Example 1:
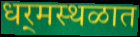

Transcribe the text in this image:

धर्मस्थळात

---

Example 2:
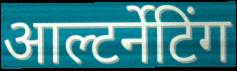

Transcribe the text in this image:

आल्टर्नेटिंग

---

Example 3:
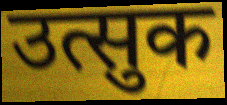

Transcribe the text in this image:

उत्सुक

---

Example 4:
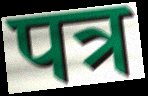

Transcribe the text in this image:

पत्र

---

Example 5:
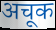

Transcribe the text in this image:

अचूक